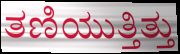
ತಣಿಯುತ್ತಿತ್ತು